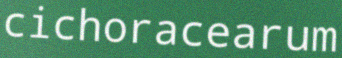
cichoracearum